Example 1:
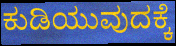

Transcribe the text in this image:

ಕುಡಿಯುವುದಕ್ಕೆ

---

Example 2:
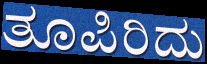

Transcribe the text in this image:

ತೂಪಿರಿದು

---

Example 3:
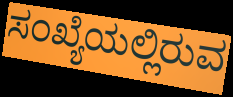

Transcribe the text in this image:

ಸಂಖ್ಯೆಯಲ್ಲಿರುವ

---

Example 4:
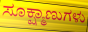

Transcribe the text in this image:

ಸೂಕ್ಷ್ಮಾಣುಗಳು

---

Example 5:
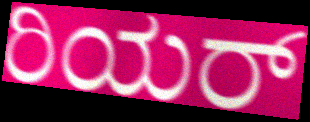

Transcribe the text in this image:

ರಿಯರ್